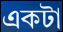
একটা